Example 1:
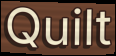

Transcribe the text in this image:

Quilt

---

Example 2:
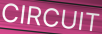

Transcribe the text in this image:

CIRCUIT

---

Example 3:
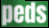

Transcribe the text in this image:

peds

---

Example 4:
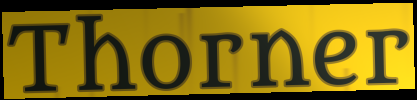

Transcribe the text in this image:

Thorner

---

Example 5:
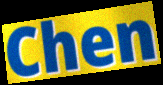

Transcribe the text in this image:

Chen